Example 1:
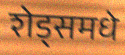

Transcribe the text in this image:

शेड्समधे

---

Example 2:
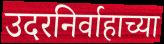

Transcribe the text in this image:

उदरनिर्वाहाच्या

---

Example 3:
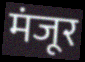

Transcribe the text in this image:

मंजूर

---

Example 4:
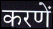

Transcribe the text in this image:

करणें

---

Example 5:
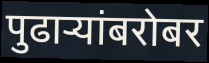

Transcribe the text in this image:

पुढाऱ्यांबरोबर